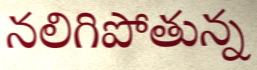
నలిగిపోతున్న